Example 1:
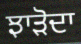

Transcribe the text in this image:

ਝਾੜੋਦਾ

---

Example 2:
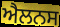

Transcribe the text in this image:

ਐਲਨਸ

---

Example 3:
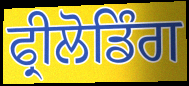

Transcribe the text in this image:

ਫ੍ਰੀਲੋਡਿੰਗ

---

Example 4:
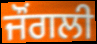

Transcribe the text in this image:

ਜੌਂਗਲੀ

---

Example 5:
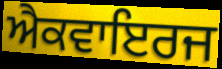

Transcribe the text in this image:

ਐਕਵਾਇਰਜ